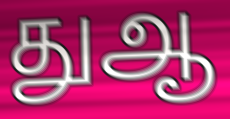
துஆ